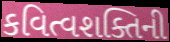
કવિત્વશક્તિની